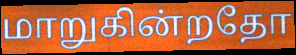
மாறுகின்றதோ